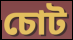
চোট